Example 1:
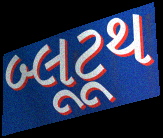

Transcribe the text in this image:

બ્લૂટૂથ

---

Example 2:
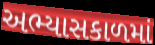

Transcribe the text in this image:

અભ્યાસકાળમાં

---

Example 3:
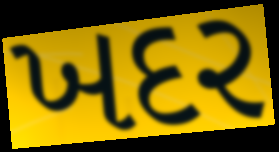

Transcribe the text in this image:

ખદર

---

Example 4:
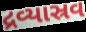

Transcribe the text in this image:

દ્રવ્યાસ્રવ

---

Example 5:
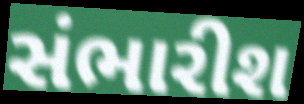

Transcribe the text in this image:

સંભારીશ